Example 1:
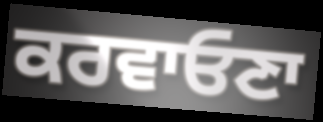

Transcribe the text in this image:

ਕਰਵਾਓਣਾ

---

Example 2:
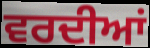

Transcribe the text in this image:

ਵਰਦੀਆਂ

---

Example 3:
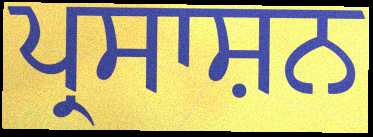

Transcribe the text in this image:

ਪ੍ਰਸਾਸ਼ਨ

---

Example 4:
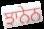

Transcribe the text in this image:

ਝਾਨੇਨ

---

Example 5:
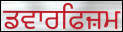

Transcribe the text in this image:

ਡਵਾਰਫਿਜ਼ਮ